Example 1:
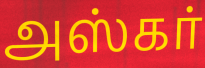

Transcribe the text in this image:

அஸ்கர்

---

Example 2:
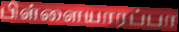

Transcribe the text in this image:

பிள்ளையாரப்பா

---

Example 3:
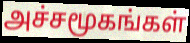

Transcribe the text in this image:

அச்சமூகங்கள்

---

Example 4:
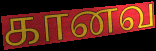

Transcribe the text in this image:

கானவ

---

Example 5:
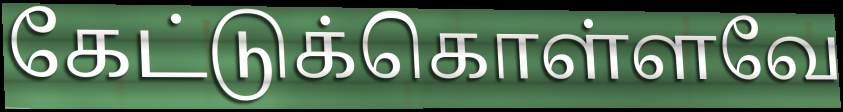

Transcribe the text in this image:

கேட்டுக்கொள்ளவே